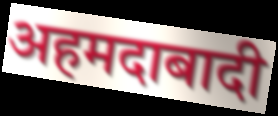
अहमदाबादी